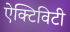
ऐक्टिविटी